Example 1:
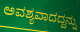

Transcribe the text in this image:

ಅವಶ್ಯವಾದದ್ದನ್ನು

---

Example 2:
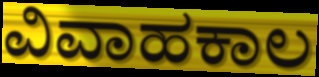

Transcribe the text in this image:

ವಿವಾಹಕಾಲ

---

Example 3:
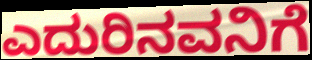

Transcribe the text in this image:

ಎದುರಿನವನಿಗೆ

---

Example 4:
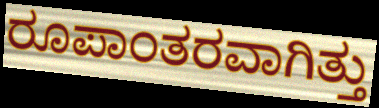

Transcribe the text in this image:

ರೂಪಾಂತರವಾಗಿತ್ತು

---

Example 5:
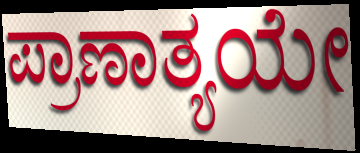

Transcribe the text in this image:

ಪ್ರಾಣಾತ್ಯಯೇ